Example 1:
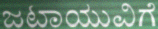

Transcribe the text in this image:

ಜಟಾಯುವಿಗೆ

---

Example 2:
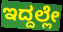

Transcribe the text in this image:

ಇದ್ದಲ್ಲೇ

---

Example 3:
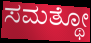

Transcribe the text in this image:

ಸಮತ್ಥೋ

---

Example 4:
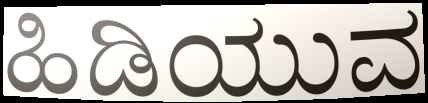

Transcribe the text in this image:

ಹಿಡಿಯುವ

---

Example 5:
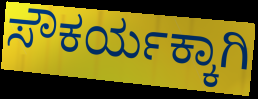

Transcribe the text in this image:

ಸೌಕರ್ಯಕ್ಕಾಗಿ